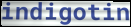
indigotin